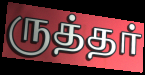
ருத்தர்